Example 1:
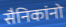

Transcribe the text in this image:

सैनिकांनो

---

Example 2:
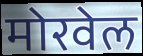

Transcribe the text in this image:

मोरवेल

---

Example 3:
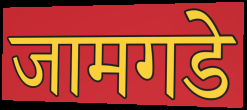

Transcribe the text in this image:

जामगडे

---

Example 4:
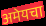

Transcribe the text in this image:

अमेयचा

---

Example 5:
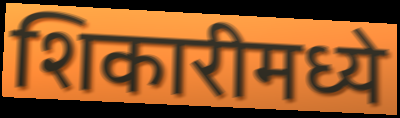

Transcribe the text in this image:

शिकारीमध्ये